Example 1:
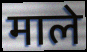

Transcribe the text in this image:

माले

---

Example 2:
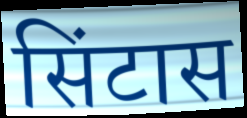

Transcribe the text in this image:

सिंटास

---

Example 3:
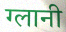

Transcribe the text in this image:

ग्लानी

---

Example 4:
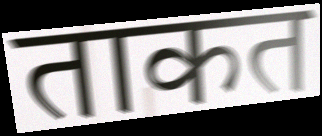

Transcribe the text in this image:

ताकत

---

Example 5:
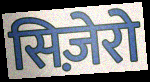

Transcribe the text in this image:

सिज़ेरो